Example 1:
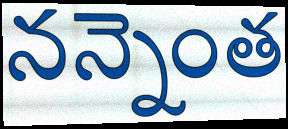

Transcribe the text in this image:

నన్నెంత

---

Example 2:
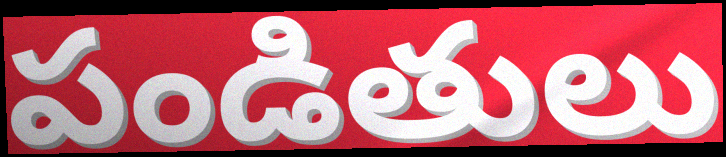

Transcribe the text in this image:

పండితులు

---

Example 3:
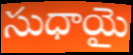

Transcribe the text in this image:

సుధాయై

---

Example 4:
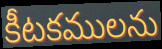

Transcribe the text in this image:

కీటకములను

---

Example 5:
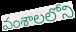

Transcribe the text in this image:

వంశాలలోని